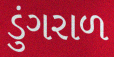
ડુંગરાળ